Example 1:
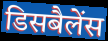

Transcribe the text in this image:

डिसबैलेंस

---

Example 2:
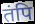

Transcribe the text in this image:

तंपि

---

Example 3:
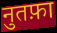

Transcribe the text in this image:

नुतफ़ा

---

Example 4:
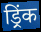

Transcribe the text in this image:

ड्रिंक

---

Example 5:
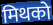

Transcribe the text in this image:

मिथको